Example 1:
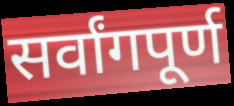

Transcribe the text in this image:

सर्वांगपूर्ण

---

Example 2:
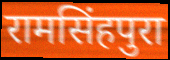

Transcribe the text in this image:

रामसिंहपुरा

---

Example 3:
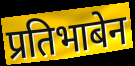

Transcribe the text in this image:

प्रतिभाबेन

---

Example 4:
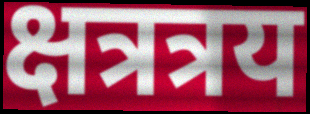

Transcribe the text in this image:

क्षत्रत्रय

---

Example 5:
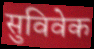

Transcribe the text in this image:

सुविवेक